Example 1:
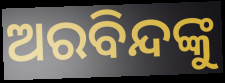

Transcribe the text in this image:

ଅରବିନ୍ଦଙ୍କୁ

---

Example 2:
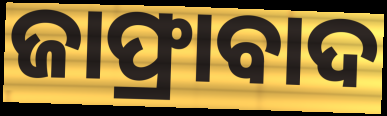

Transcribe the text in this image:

ଜାଫ୍ରାବାଦ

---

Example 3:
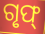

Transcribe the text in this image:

ଗୃଫ୍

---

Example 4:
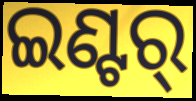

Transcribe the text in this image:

ଇଣ୍ଟର୍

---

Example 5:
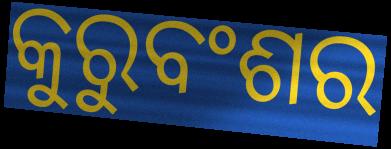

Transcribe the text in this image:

କୁରୁବଂଶର